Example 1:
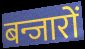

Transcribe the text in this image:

बन्जारों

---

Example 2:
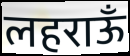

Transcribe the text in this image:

लहराऊँ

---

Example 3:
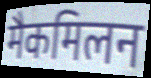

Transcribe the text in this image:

मैकमिलन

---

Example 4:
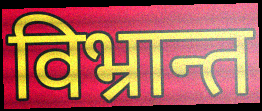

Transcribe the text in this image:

विभ्रान्त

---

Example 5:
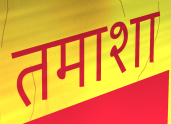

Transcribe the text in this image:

तमाशा